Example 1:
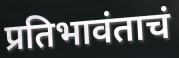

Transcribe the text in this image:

प्रतिभावंताचं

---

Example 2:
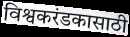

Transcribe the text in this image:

विश्वकरंडकासाठी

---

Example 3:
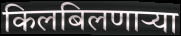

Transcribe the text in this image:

किलबिलणाऱ्या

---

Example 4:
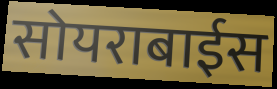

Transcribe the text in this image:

सोयराबाईस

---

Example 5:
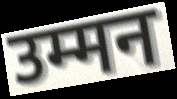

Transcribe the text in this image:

उम्मन